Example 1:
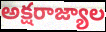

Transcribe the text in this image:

అక్షరాజ్యాల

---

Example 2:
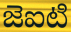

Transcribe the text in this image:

జెఐటి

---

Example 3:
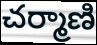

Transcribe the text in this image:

చర్మాణి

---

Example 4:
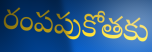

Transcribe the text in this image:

రంపపుకోతకు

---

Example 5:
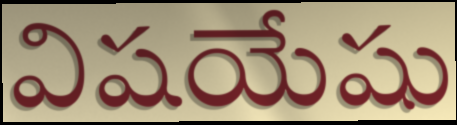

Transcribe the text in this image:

విషయేషు